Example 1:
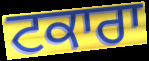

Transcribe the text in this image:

ਟਕਾਰਾ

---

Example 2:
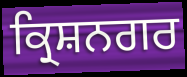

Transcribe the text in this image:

ਕ੍ਰਿਸ਼ਨਗਰ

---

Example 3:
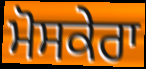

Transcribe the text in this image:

ਮੋਸਕੇਰਾ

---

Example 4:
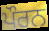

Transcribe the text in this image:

ਪੌਰਨ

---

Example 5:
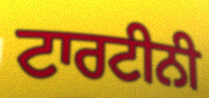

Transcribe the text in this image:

ਟਾਰਟੀਨੀ